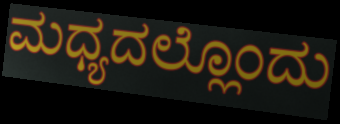
ಮಧ್ಯದಲ್ಲೊಂದು